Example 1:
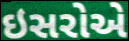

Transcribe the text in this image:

ઇસરોએ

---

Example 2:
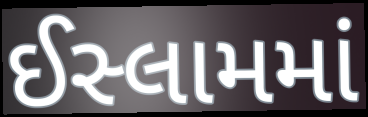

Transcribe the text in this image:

ઈસ્લામમાં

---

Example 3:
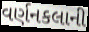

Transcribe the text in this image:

વર્ણનકલાની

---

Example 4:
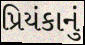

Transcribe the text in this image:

પ્રિયંકાનું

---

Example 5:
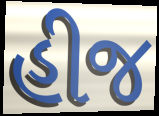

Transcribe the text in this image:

હીજ